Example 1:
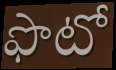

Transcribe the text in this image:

ఫొటో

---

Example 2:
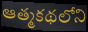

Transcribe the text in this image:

ఆత్మకథలోని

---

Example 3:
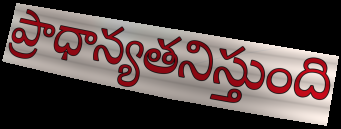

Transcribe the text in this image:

ప్రాధాన్యతనిస్తుంది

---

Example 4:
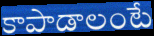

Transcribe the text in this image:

కాపాడాలంటే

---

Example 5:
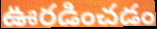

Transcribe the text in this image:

ఊరడించడం